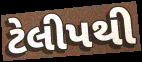
ટેલીપથી